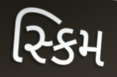
સ્કિમ